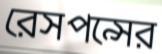
রেসপন্সের